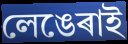
লেঙেৰাই